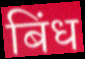
बिंध